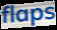
flaps